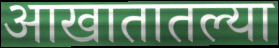
आखातातल्या